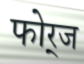
फोर्ज